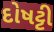
દોષટ્ટી